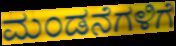
ಮಂಡನೆಗಳಿಗೆ